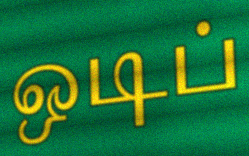
ஒடிப்